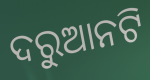
ଦରୁଆନଟି